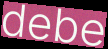
debe